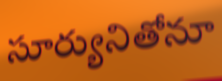
సూర్యునితోనూ